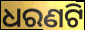
ଧରଣଟି